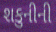
શકુનીની